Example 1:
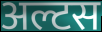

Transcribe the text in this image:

अल्टस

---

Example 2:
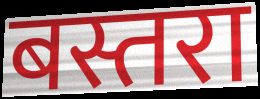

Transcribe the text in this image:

बस्तरा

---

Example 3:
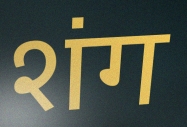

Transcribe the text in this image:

शंग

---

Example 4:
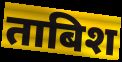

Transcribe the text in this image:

ताबिश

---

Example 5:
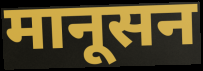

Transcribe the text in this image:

मानूसन